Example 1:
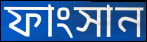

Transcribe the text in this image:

ফাংসান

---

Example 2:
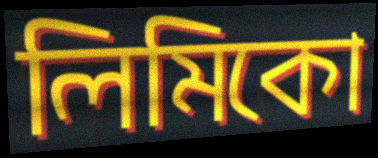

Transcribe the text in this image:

লিমিকো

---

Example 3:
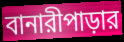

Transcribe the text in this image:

বানারীপাড়ার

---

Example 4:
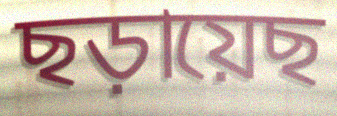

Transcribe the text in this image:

ছড়ায়েছ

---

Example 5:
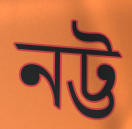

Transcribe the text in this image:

নট্ট